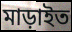
মাড়াইত